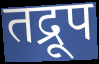
तद्रूप